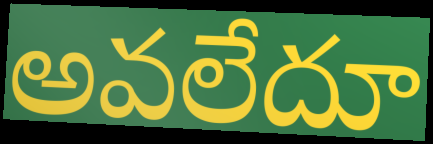
అవలేదూ